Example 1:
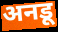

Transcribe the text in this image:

अनडू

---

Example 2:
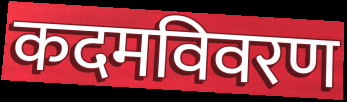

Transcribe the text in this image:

कदमविवरण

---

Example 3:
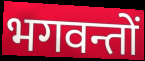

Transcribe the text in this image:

भगवन्तों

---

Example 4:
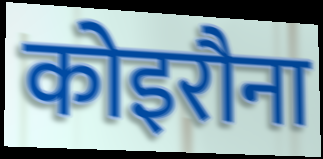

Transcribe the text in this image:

कोइरौना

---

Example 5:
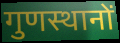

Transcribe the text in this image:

गुणस्थानों